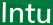
Intu